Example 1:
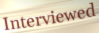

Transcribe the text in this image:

Interviewed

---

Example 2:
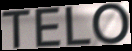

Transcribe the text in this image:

TELO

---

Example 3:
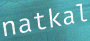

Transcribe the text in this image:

natkal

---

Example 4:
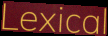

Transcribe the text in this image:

Lexical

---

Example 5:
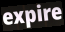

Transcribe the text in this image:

expire